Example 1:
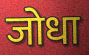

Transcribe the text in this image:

जोधा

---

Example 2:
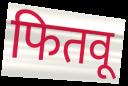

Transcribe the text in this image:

फितवू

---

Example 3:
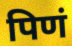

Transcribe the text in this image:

पिणं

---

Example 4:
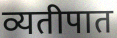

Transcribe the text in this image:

व्यतीपात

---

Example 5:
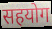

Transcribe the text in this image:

सहयोग